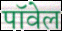
पॉवेल